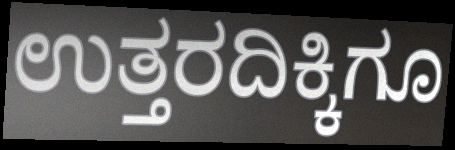
ಉತ್ತರದಿಕ್ಕಿಗೂ